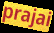
prajai